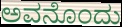
ಅವನೊಂದು